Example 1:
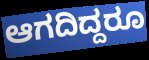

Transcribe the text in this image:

ಆಗದಿದ್ದರೂ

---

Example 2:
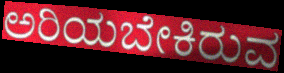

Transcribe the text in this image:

ಅರಿಯಬೇಕಿರುವ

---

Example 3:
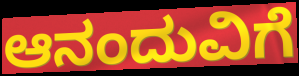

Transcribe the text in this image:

ಆನಂದುವಿಗೆ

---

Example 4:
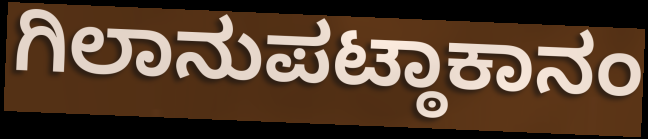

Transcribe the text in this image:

ಗಿಲಾನುಪಟ್ಠಾಕಾನಂ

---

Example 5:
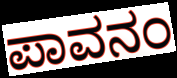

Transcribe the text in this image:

ಪಾವನಂ